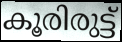
കൂരിരുട്ട്